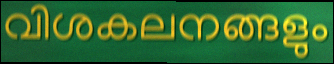
വിശകലനങ്ങളും